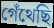
গেঁথেছি